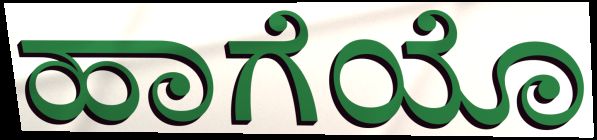
ಹಾಗೆಯೊ